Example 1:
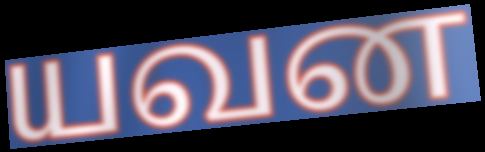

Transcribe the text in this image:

யவன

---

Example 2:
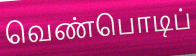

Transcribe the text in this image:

வெண்பொடிப்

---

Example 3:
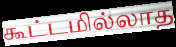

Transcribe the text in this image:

கூட்டமில்லாத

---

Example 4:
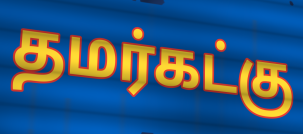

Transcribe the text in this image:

தமர்கட்கு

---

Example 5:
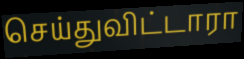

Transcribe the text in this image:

செய்துவிட்டாரா